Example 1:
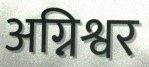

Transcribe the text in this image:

अग्निश्वर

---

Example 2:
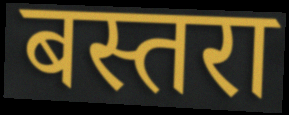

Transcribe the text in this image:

बस्तरा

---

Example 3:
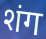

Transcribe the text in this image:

शंग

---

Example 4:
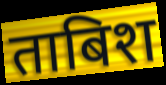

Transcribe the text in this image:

ताबिश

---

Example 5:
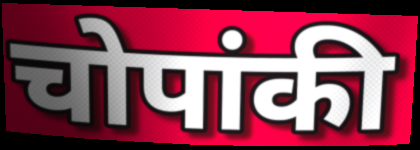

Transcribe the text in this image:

चोपांकी